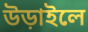
উড়াইলে